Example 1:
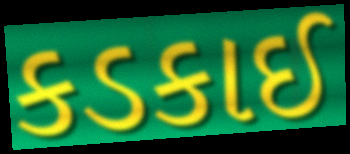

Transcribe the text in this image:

કડકાઈ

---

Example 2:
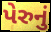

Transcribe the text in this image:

પેરુનું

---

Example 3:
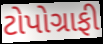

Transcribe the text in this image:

ટોપોગ્રાફી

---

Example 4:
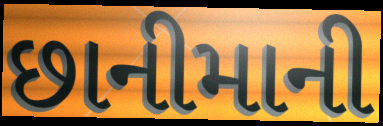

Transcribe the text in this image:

છાનીમાની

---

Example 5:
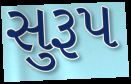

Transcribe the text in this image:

સુરૂપ